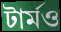
টার্মও